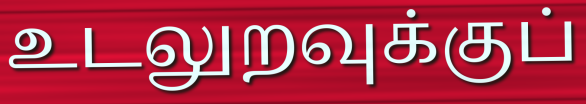
உடலுறவுக்குப்